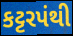
કટ્ટરપંથી